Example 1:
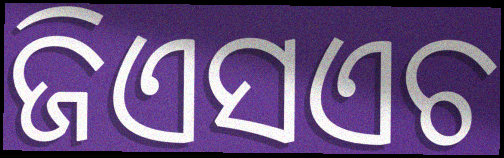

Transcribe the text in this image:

ଜିଏସଏଚ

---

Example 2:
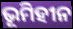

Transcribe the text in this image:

ଭୂମିହୀନ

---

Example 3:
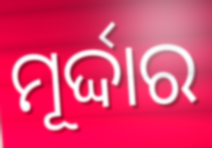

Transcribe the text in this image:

ମୂର୍ଦ୍ଦାର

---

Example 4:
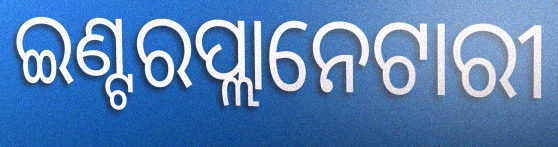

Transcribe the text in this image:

ଇଣ୍ଟରପ୍ଲାନେଟାରୀ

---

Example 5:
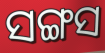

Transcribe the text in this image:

ସଙ୍ଗସ